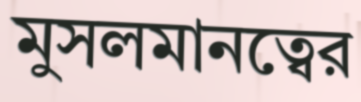
মুসলমানত্বের